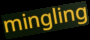
mingling